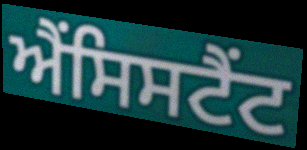
ਐਂਸਿਸਟੈਂਟ